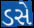
ડસે